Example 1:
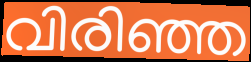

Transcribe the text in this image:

വിരിഞ്ഞ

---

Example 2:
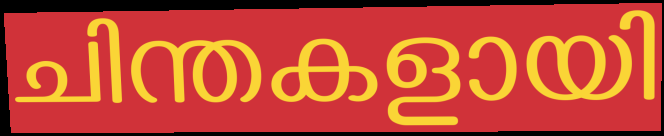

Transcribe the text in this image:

ചിന്തകളായി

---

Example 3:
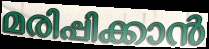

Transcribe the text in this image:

മരിപ്പിക്കാൻ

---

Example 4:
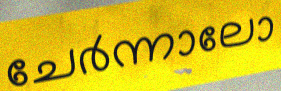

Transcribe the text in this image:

ചേർന്നാലോ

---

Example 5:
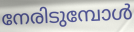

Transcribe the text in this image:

നേരിടുമ്പോൾ